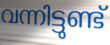
വന്നിട്ടുണ്ട്